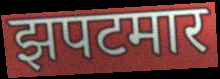
झपटमार